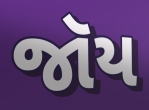
જૉય